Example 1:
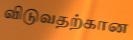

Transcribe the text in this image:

விடுவதற்கான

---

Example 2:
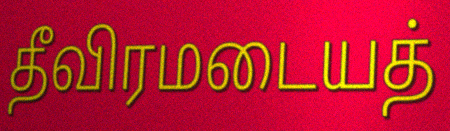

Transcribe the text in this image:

தீவிரமடையத்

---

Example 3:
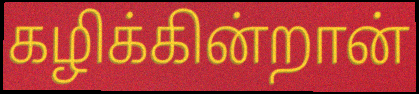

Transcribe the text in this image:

கழிக்கின்றான்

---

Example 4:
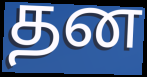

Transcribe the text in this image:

தன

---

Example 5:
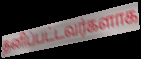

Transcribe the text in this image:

தனிப்பட்டவர்களாக